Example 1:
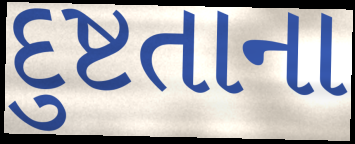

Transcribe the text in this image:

દુષ્ટતાના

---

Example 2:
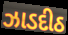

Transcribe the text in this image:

ઝાડદીઠ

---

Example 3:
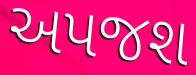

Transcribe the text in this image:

અપજશ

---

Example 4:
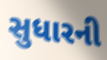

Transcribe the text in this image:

સુધારની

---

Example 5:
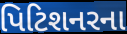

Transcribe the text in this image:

પિટિશનરના